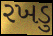
રખડુ